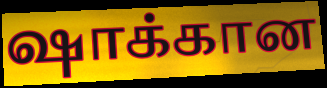
ஷாக்கான